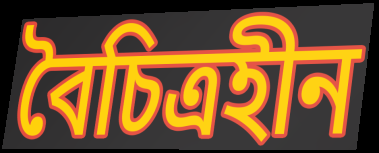
বৈচিত্রহীন